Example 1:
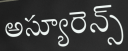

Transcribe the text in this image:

అస్యూరెన్స్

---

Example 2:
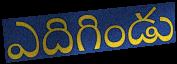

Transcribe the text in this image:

ఎదిగిండు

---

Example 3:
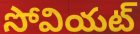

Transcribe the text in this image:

సోవియట్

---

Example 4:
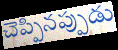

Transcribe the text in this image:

చెప్పినప్పుడు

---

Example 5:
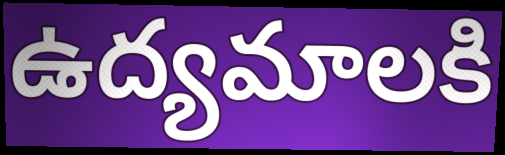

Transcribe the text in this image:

ఉద్యమాలకి